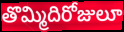
తొమ్మిదిరోజులూ